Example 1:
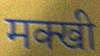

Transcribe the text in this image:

मक्खी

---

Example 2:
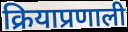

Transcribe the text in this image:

क्रियाप्रणाली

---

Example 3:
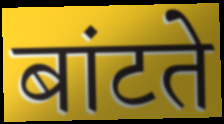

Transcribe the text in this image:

बांटते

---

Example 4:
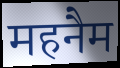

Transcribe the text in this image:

महनैम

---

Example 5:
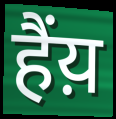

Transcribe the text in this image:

हैंय़